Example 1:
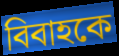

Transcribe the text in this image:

বিবাহকে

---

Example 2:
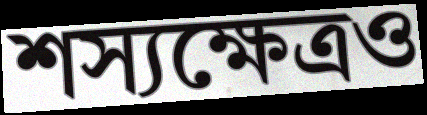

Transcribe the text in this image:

শস্যক্ষেত্রও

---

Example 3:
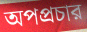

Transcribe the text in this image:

অপপ্রচার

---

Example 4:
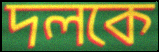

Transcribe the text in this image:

দলকে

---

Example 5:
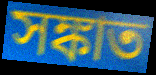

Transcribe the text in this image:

সঙ্কাত